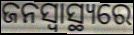
ଜନସ୍ଵାସ୍ଥ୍ୟରେ